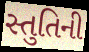
સ્તુતિની